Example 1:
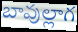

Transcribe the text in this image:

బావుల్లాగ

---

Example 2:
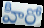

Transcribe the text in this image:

హీరో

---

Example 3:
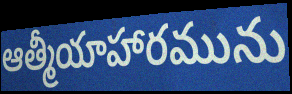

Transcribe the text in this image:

ఆత్మీయాహారమును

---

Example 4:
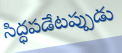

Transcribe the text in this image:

సిద్ధపడేటప్పుడు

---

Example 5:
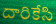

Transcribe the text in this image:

దారికేసి